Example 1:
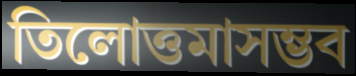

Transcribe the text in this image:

তিলোত্তমাসম্ভব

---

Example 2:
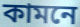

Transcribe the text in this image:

কামনে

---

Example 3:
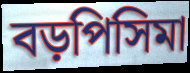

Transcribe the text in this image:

বড়পিসিমা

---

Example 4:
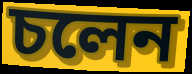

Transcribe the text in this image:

চলেন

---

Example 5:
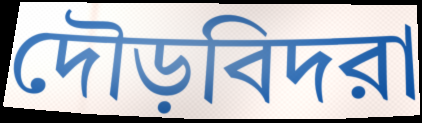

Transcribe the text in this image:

দৌড়বিদরা